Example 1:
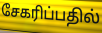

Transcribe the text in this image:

சேகரிப்பதில்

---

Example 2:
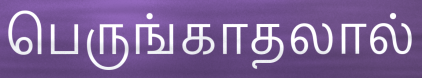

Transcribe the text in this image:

பெருங்காதலால்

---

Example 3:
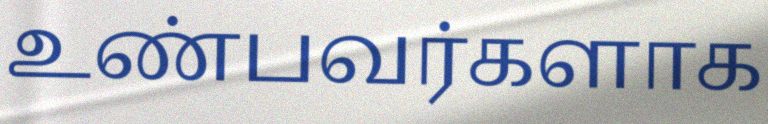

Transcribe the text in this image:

உண்பவர்களாக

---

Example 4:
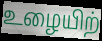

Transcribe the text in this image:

உழையிற்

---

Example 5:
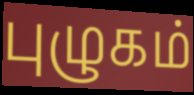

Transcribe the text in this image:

புழுகம்